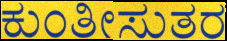
ಕುಂತೀಸುತರ